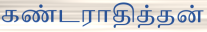
கண்டராதித்தன்